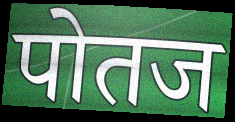
पोतज